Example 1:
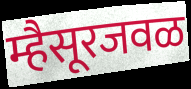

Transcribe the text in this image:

म्हैसूरजवळ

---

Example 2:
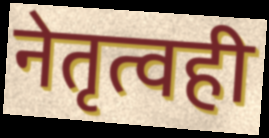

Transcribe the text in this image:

नेतृत्वही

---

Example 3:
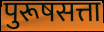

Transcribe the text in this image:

पुरूषसत्ता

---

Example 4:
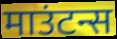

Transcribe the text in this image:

माउंटन्स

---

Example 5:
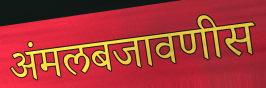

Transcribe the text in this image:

अंमलबजावणीस